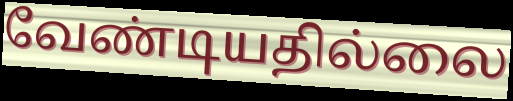
வேண்டியதில்லை